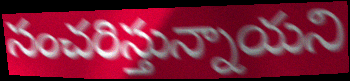
సంచరిస్తున్నాయని